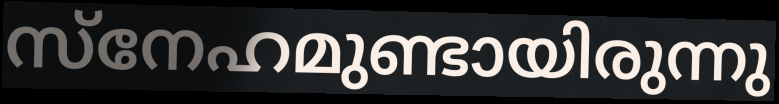
സ്നേഹമുണ്ടായിരുന്നു